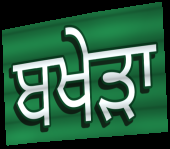
ਬਖੇੜਾ